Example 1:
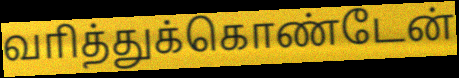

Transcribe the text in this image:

வரித்துக்கொண்டேன்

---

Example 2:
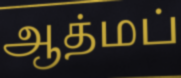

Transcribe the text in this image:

ஆத்மப்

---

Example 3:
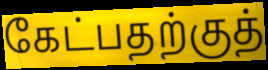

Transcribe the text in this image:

கேட்பதற்குத்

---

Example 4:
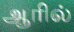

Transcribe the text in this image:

ஆரில்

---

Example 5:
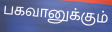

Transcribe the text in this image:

பகவானுக்கும்